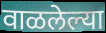
वाळलेल्या